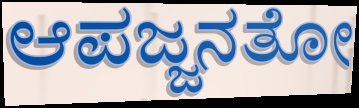
ಆಪಜ್ಜನತೋ